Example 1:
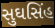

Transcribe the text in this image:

સુઘસિંહ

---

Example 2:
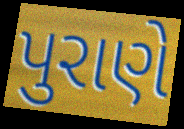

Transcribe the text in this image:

પુરાણે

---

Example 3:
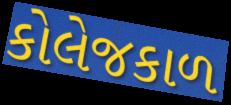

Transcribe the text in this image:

કોલેજકાળ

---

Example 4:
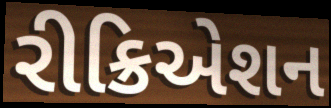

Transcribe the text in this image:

રીક્રિએશન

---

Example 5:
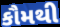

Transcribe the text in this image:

કૌમથી